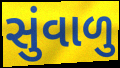
સુંવાળુ